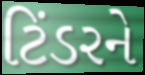
ટિંડરને